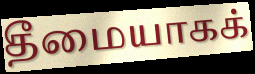
தீமையாகக்